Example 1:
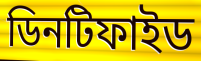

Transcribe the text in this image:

ডিনটিফাইড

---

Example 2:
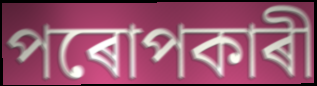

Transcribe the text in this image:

পৰোপকাৰী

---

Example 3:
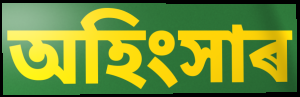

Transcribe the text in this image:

অহিংসাৰ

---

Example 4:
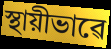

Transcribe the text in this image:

স্থায়ীভাৱে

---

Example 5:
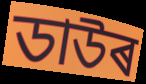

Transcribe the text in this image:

ডাউৰ